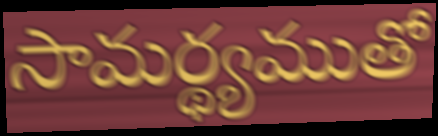
సామర్థ్యముతో